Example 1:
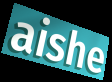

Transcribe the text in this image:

aishe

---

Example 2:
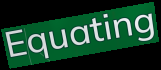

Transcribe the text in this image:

Equating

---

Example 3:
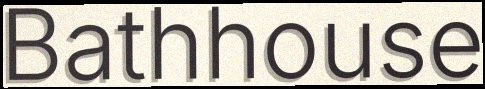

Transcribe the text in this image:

Bathhouse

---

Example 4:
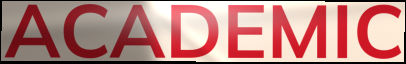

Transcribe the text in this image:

ACADEMIC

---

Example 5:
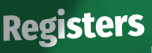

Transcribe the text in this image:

Registers